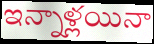
ఇన్నాళ్లయినా